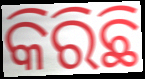
କିରିଛି